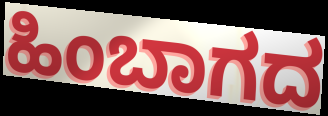
ಹಿಂಬಾಗದ